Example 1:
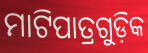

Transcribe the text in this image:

ମାଟିପାତ୍ରଗୁଡ଼ିକ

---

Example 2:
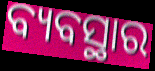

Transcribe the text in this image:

ବ୍ୟବସ୍ଥାର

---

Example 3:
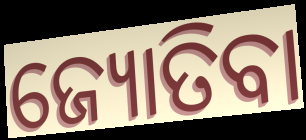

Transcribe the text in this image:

ଜ୍ୟୋତିବା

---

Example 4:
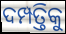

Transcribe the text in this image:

ଦମ୍ପତ୍ତିକୁ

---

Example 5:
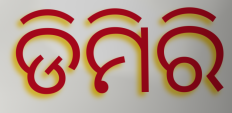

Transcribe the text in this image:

ଡିମିରି